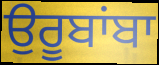
ਉਰੂਬਾਂਬਾ